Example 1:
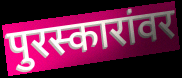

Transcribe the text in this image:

पुरस्कारांवर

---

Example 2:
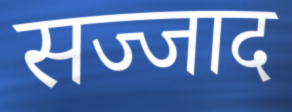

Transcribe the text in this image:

सज्जाद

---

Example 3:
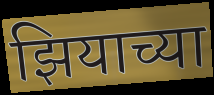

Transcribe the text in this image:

झियाच्या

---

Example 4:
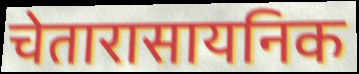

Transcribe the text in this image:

चेतारासायनिक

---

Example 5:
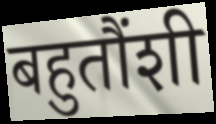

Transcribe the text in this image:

बहुतौंशी